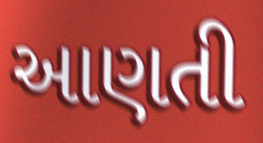
આણતી